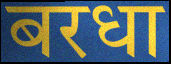
बरधा